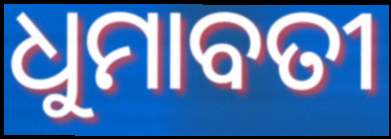
ଧୁମାବତୀ